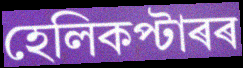
হেলিকপ্টাৰৰ